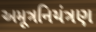
અમૂત્રનિયંત્રણ